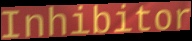
Inhibitor